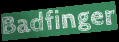
Badfinger